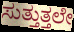
ಸುತ್ತುತ್ತಲೇ